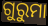
ଗୁରୁମା